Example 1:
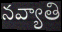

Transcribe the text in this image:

నవ్యాతి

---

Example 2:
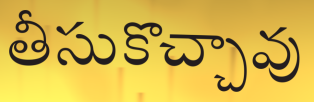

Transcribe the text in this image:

తీసుకొచ్చావు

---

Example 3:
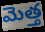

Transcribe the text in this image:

మెత్త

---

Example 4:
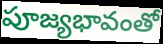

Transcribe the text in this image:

పూజ్యభావంతో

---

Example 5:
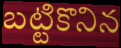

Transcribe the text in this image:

బట్టికొనిన